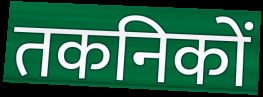
तकनिकों